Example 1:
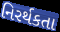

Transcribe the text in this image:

નિરર્થકતા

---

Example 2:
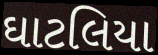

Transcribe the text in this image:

ઘાટલિયા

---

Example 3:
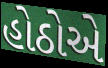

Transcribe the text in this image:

હોઠોએ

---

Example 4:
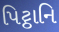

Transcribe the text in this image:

પિટ્ઠાનિ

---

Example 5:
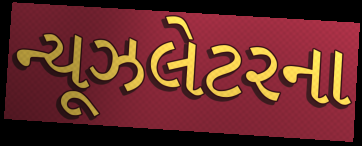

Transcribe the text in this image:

ન્યૂઝલેટરના